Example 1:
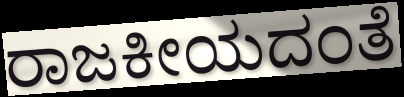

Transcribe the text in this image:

ರಾಜಕೀಯದಂತೆ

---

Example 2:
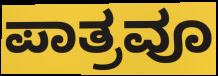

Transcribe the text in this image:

ಪಾತ್ರವೂ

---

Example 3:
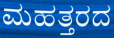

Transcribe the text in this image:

ಮಹತ್ತರದ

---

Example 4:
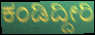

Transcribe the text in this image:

ಕಂಡಿದ್ದೀರಿ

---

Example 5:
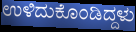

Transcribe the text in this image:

ಉಳಿದುಕೊಂಡಿದ್ದಳು